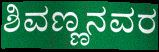
ಶಿವಣ್ಣನವರ